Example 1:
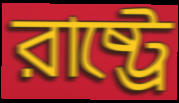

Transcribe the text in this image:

রাষ্ট্রে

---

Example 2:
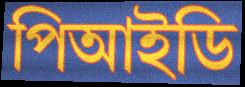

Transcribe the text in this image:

পিআইডি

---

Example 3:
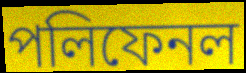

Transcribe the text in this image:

পলিফেনল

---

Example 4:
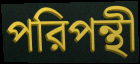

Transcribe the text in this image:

পরিপন্থী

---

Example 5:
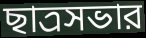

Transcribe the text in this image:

ছাত্রসভার